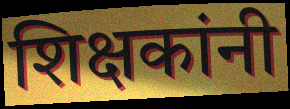
शिक्षकांनी